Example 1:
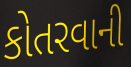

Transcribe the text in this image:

કોતરવાની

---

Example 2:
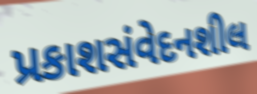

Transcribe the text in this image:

પ્રકાશસંવેદનશીલ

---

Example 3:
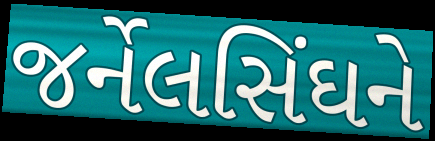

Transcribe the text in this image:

જર્નેલસિંઘને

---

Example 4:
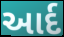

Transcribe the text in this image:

આર્દ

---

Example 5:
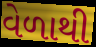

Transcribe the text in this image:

વેળાથી